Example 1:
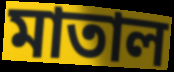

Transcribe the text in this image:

মাতাল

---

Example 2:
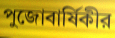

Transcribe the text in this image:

পুজোবার্ষিকীর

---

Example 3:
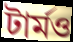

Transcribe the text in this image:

টার্মও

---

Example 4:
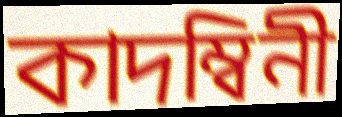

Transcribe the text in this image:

কাদম্বিনী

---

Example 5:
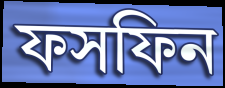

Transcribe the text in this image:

ফসফিন